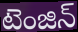
టెంజిన్